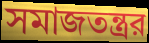
সমাজতন্ত্রর